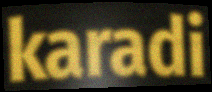
karadi